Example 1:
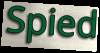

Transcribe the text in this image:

Spied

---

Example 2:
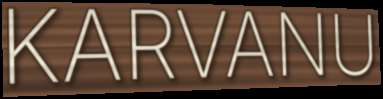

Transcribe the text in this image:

KARVANU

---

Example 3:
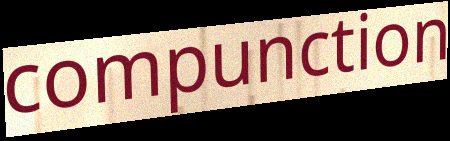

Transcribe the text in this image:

compunction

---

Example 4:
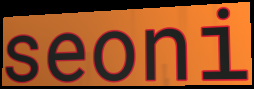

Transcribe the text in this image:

seoni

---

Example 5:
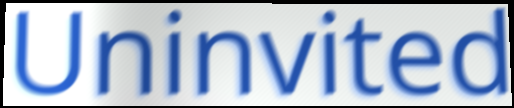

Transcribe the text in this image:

Uninvited